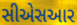
સીએસઆર